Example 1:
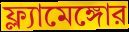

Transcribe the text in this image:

ফ্ল্যামেঙ্গোর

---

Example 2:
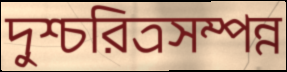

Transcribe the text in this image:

দুশ্চরিত্রসম্পন্ন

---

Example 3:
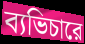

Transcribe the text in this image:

ব্যভিচারে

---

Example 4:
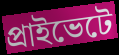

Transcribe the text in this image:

প্রাইভেটে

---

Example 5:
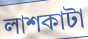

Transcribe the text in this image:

লাশকাটা